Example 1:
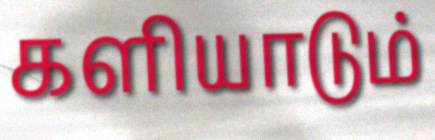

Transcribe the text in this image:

களியாடும்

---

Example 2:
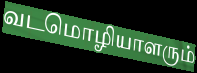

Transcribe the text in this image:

வடமொழியாளரும்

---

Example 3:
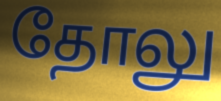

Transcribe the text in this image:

தோலு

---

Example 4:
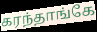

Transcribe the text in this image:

கரந்தாங்கே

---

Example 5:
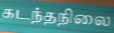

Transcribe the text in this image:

கடந்தநிலை